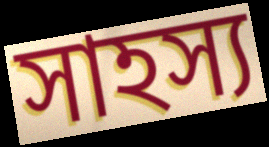
সাহস্য